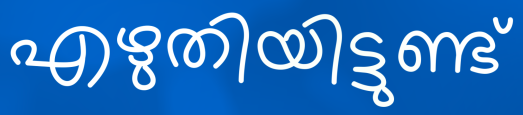
എഴുതിയിട്ടുണ്ട്